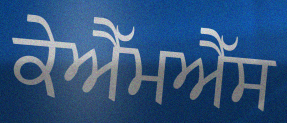
ਕੇਐੱਮਐੱਸ